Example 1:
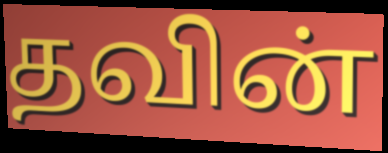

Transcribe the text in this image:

தவின்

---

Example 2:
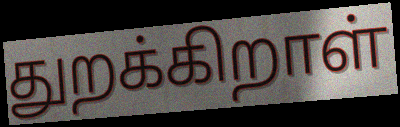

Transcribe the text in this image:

துறக்கிறாள்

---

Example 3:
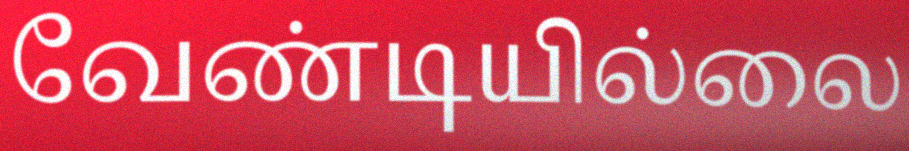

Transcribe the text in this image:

வேண்டியில்லை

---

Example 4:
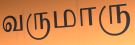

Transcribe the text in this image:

வருமாரு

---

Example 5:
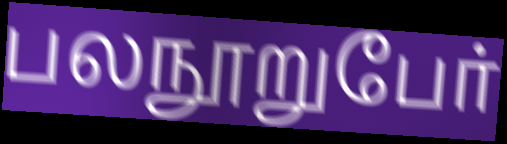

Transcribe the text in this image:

பலநூறுபேர்